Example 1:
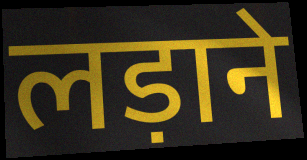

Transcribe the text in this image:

लड़ाने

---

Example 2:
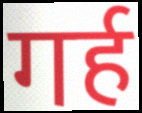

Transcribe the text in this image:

गर्ह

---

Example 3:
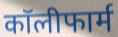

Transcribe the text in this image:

कॉलीफार्म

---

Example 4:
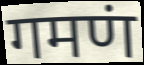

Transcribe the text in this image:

गमणं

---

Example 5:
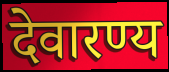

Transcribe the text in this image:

देवारण्य